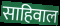
साहिवाल